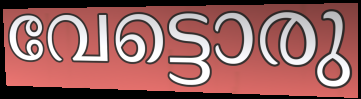
വേട്ടൊരു